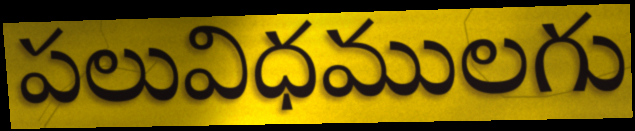
పలువిధములగు